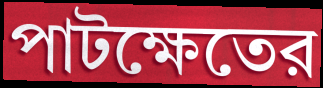
পাটক্ষেতের